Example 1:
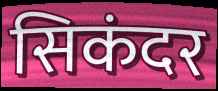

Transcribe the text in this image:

सिकंदर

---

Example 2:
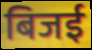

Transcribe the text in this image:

बिजई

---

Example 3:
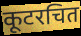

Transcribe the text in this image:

कूटरचित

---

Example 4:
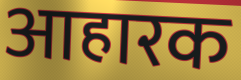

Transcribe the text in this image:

आहारक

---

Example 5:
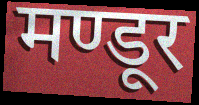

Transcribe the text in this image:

मण्डूर